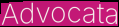
Advocata